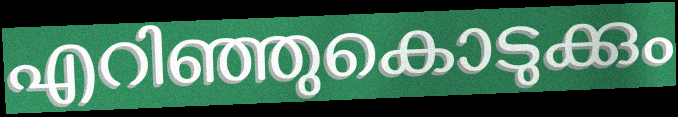
എറിഞ്ഞുകൊടുക്കും